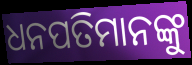
ଧନପତିମାନଙ୍କୁ